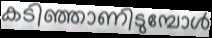
കടിഞ്ഞാണിടുമ്പോൾ